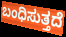
ಬಂಧಿಸುತ್ತದೆ